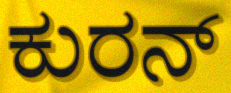
ಕುರನ್